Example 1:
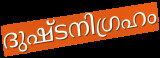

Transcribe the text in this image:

ദുഷ്ടനിഗ്രഹം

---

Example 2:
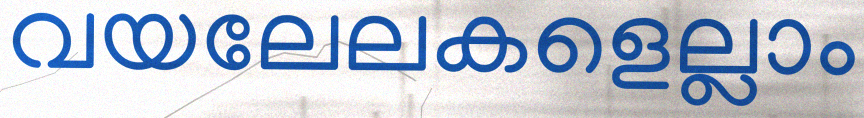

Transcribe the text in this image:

വയലേലകളെല്ലാം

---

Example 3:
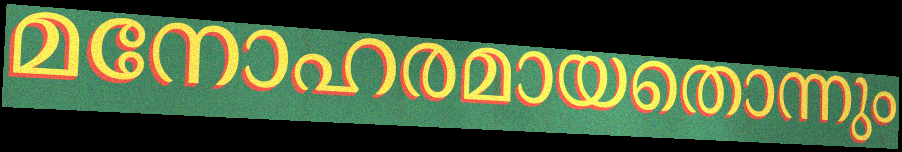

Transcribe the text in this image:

മനോഹരമായതൊന്നും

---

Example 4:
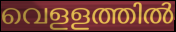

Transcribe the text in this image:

വെളളത്തിൽ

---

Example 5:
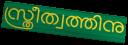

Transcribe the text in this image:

സ്ത്രീത്വത്തിനു